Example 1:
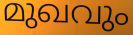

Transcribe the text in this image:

മുഖവും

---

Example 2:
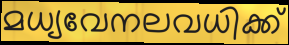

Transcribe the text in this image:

മധ്യവേനലവധിക്ക്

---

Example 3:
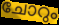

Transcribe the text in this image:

ചോറും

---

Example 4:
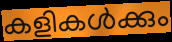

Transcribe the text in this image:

കളികൾക്കും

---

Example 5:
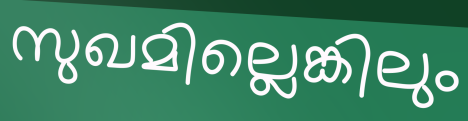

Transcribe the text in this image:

സുഖമില്ലെങ്കിലും